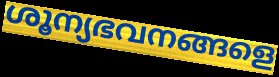
ശൂന്യഭവനങ്ങളെ